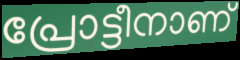
പ്രോട്ടീനാണ്